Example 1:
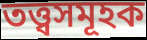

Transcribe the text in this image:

তত্ত্বসমূহক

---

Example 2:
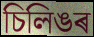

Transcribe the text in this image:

চিলিঙৰ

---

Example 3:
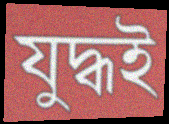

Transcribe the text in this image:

যুদ্ধই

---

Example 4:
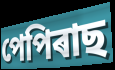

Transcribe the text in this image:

পেপিৰাছ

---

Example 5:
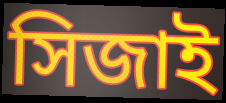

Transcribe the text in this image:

সিজাই